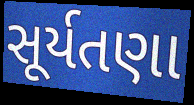
સૂર્યતણા